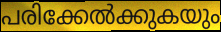
പരിക്കേൽക്കുകയും